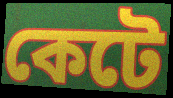
কেটে